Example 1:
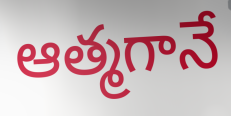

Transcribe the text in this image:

ఆత్మగానే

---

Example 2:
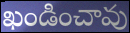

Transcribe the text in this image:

ఖండించావు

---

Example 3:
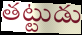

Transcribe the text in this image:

తట్టుడు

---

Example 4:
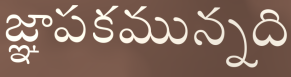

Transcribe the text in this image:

జ్ఞాపకమున్నది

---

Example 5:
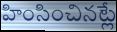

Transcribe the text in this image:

హింసించినట్లే